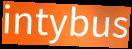
intybus